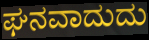
ಘನವಾದುದು